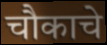
चौकाचे